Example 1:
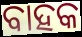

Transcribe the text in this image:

ବାହକ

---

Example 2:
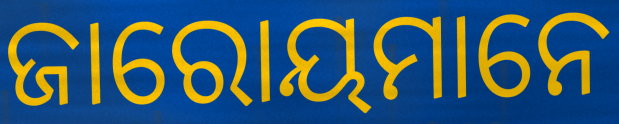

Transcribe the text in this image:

ଜାରୋୟମାନେ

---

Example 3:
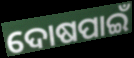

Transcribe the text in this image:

ଦୋଷପାଇଁ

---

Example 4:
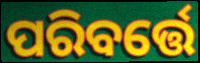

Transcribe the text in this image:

ପରିବର୍ତ୍ତେ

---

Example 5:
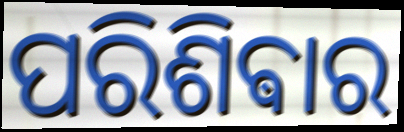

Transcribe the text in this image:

ପରିଶିଵାର